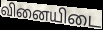
வினையிடை